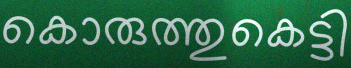
കൊരുത്തുകെട്ടി